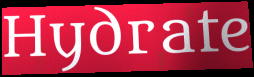
Hydrate